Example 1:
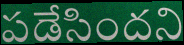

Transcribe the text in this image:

పడేసిందని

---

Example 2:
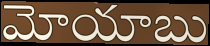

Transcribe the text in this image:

మోయాబు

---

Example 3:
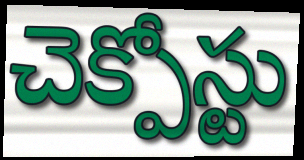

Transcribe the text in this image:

చెక్పోస్టు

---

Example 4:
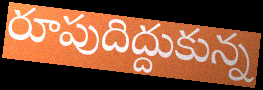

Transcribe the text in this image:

రూపుదిద్దుకున్న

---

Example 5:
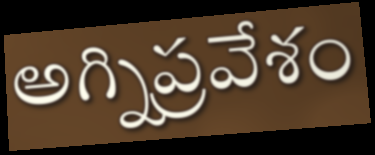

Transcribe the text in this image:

అగ్నిప్రవేశం